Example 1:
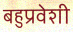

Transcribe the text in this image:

बहुप्रवेशी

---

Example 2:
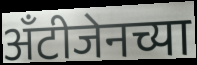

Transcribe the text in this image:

अँटीजेनच्या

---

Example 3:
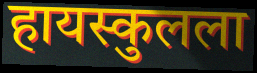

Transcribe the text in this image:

हायस्कुलला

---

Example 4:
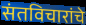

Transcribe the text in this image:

संतविचारांचे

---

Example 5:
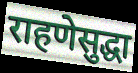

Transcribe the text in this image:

राहणेसुद्धा